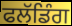
ਫਲੱਡਿੰਗ